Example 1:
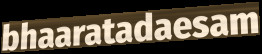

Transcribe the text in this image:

bhaaratadaesam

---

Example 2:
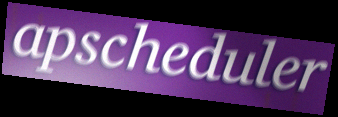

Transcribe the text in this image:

apscheduler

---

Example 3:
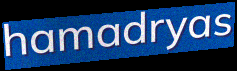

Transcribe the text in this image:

hamadryas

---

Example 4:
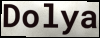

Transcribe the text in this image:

Dolya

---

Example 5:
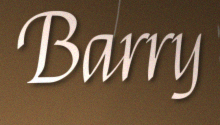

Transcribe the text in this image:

Barry